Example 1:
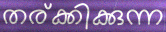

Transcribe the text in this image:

തര്ക്കിക്കുന്ന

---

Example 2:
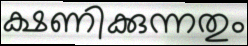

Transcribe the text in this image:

ക്ഷണിക്കുന്നതും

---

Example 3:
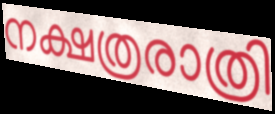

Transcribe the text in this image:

നക്ഷത്രരാത്രി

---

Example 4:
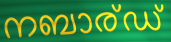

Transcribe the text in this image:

നബാര്ഡ്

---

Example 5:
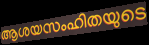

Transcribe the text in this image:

ആശയസംഹിതയുടെ